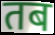
तब